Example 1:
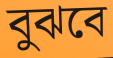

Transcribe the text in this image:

বুঝবে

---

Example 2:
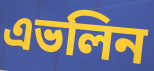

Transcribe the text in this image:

এভলিন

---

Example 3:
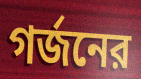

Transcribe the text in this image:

গর্জনের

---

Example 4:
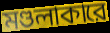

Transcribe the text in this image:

মণ্ডলাকারে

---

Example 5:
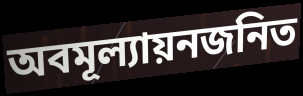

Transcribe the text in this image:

অবমূল্যায়নজনিত